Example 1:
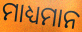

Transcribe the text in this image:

ମାଧ୍ଯମାନ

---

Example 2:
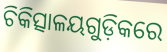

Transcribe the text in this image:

ଚିକିତ୍ସାଳୟଗୁଡ଼ିକରେ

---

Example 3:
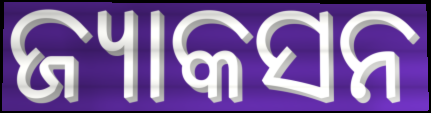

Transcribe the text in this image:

ଜ୍ୟାକସନ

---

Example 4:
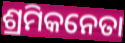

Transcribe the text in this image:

ଶ୍ରମିକନେତା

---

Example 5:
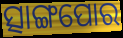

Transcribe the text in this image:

ତ୍ସାଙ୍ଗପୋର